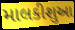
માલકીશુઆ